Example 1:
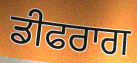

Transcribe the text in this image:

ਡੀਫਰਾਗ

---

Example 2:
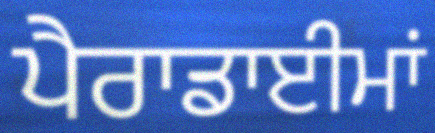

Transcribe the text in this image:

ਪੈਰਾਡਾਈਮਾਂ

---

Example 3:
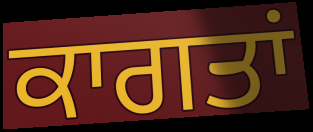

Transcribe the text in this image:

ਕਾਗਤਾਂ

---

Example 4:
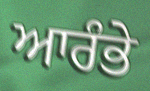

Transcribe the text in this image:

ਆਰੰਭੇ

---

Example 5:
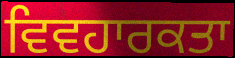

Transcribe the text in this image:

ਵਿਵਹਾਰਕਤਾ